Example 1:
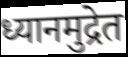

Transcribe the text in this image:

ध्यानमुद्रेत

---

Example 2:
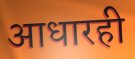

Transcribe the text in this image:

आधारही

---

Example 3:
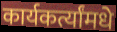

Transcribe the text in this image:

कार्यकर्त्यांमधे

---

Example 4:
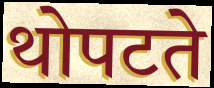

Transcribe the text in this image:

थोपटते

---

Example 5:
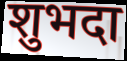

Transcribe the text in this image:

शुभदा